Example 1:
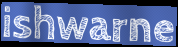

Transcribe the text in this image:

ishwarne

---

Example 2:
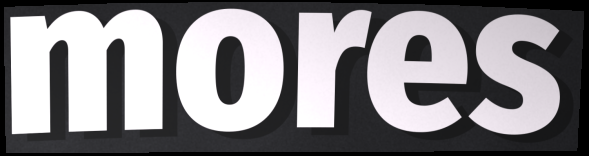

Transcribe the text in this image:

mores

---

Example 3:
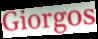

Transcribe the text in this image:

Giorgos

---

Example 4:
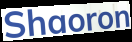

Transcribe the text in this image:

Shaoron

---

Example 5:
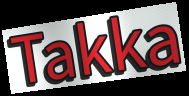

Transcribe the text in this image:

Takka